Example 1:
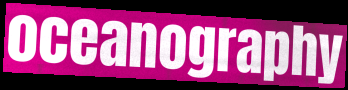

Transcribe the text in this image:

oceanography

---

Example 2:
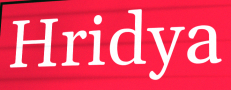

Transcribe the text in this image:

Hridya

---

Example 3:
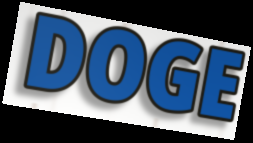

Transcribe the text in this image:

DOGE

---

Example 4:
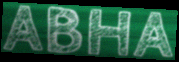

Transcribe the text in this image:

ABHA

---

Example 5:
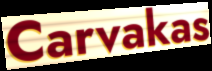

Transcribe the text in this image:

Carvakas